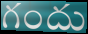
గందు